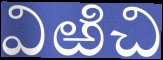
విఱిచి